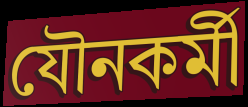
যৌনকৰ্মী